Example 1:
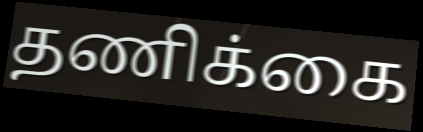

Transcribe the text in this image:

தணிக்கை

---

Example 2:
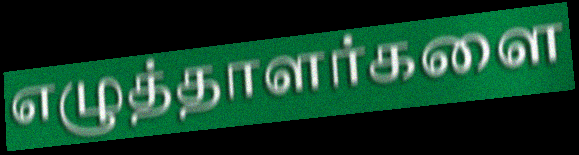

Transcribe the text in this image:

எழுத்தாளர்களை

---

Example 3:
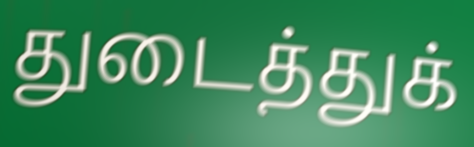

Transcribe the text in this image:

துடைத்துக்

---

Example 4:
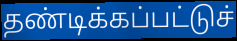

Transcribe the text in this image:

தண்டிக்கப்பட்டுச்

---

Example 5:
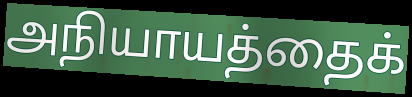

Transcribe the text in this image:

அநியாயத்தைக்